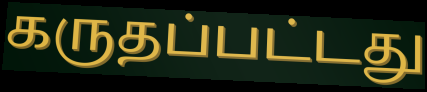
கருதப்பட்டது